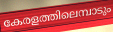
കേരളത്തിലെമ്പാടും